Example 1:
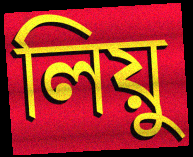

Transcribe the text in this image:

লিয়ু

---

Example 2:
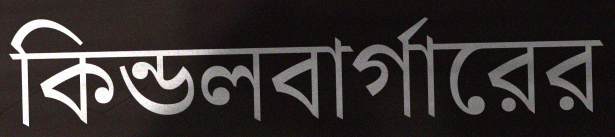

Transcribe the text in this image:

কিন্ডলবার্গারের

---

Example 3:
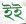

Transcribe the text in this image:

ইই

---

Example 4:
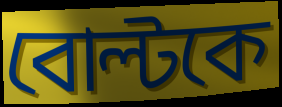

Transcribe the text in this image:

বোল্টকে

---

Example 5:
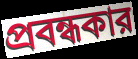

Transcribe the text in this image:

প্রবন্ধকার